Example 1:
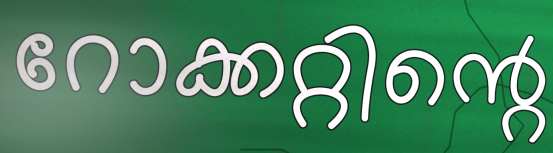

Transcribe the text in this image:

റോക്കറ്റിന്റെ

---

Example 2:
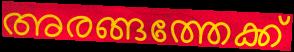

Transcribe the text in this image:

അരങ്ങത്തേക്ക്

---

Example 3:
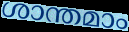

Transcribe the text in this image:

ശാന്തമാം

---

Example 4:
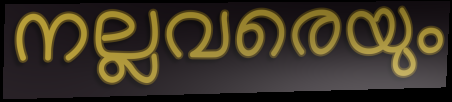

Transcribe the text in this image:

നല്ലവരെയും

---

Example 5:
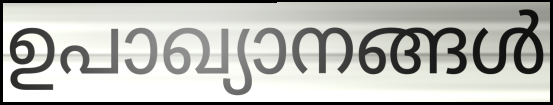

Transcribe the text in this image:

ഉപാഖ്യാനങ്ങൾ